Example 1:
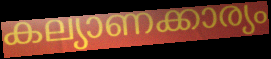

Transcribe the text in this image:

കല്യാണക്കാര്യം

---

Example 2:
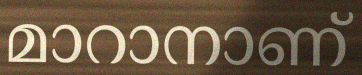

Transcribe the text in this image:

മാറാനാണ്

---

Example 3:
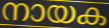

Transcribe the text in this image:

നായക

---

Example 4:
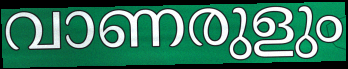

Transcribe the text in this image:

വാണരുളും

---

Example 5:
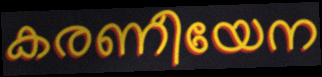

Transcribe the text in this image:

കരണീയേന